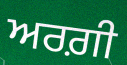
ਅਰਗ਼ੀ